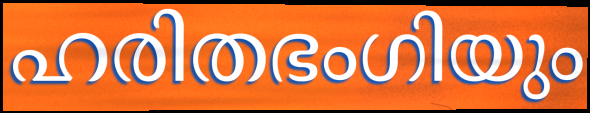
ഹരിതഭംഗിയും